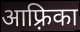
आफ़्रिका